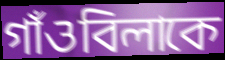
গাঁওবিলাকে